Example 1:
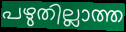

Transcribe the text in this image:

പഴുതില്ലാത്ത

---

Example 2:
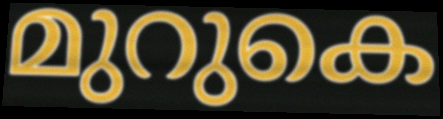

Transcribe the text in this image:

മുറുകെ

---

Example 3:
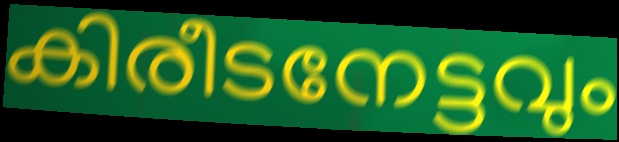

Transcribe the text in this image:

കിരീടനേട്ടവും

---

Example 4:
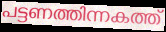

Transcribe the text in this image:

പട്ടണത്തിന്നകത്ത്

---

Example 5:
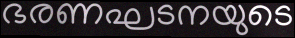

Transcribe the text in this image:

ഭരണഘടനയുടെ